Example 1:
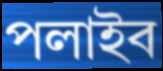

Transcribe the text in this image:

পলাইব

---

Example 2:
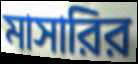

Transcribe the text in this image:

মাসারির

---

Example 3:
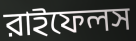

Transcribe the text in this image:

রাইফেলস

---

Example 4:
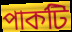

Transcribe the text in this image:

পার্কটি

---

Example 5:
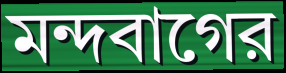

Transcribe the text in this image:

মন্দবাগের